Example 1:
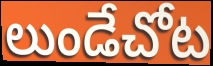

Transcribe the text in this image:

లుండేచోట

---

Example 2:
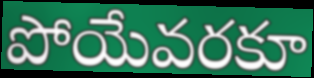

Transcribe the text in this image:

పోయేవరకూ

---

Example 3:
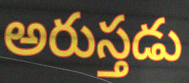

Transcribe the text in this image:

అరుస్తడు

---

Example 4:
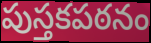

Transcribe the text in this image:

పుస్తకపఠనం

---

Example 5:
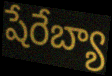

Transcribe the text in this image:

షేరేబ్యా